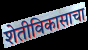
शेतीविकासाचा